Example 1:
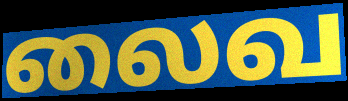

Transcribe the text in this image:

லைவ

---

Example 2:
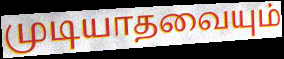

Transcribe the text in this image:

முடியாதவையும்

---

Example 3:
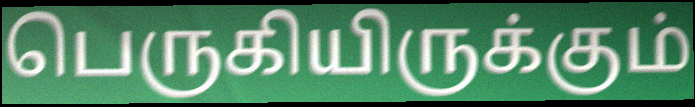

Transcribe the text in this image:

பெருகியிருக்கும்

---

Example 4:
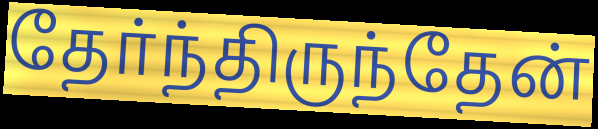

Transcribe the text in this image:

தேர்ந்திருந்தேன்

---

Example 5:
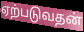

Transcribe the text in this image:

ஏற்படுவதன்